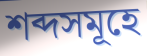
শব্দসমূহে